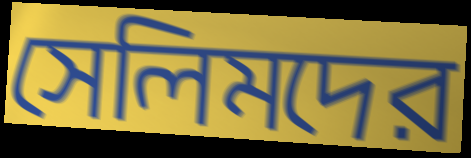
সেলিমদের